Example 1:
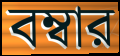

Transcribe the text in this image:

বম্বার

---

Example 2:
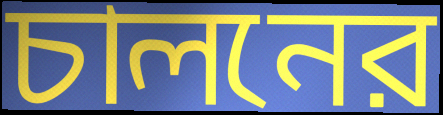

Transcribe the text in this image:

চালনের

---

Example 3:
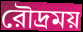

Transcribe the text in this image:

রৌদ্রময়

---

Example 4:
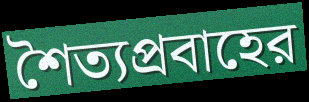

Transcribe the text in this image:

শৈত্যপ্রবাহের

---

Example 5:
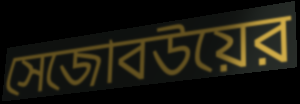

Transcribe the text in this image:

সেজোবউয়ের